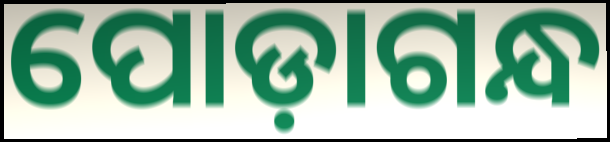
ପୋଡ଼ାଗନ୍ଧ